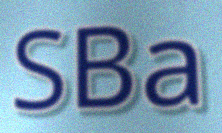
SBa